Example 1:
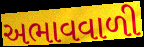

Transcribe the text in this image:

અભાવવાળી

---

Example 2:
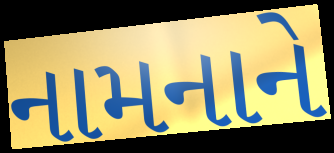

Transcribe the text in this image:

નામનાને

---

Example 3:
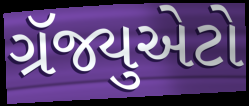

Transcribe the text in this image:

ગ્રૅજ્યુએટો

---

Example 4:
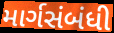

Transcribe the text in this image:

માર્ગસંબંધી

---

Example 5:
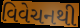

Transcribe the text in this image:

વિવેચનથી